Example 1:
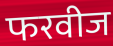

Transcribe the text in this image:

फरवीज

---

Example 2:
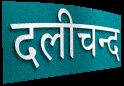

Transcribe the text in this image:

दलीचन्द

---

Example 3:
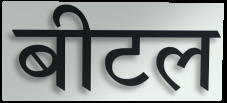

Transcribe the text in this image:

बीटल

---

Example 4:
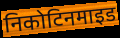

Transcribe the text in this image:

निकोटिनमाइड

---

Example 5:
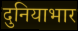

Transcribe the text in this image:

दुनियाभार